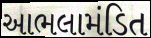
આભલામંડિત